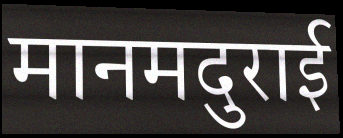
मानमदुराई